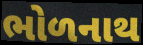
ભોળનાથ